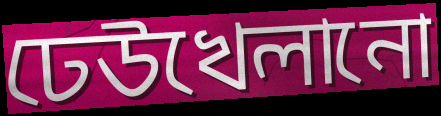
ঢেউখেলানো